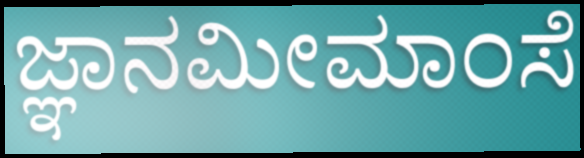
ಜ್ಞಾನಮೀಮಾಂಸೆ